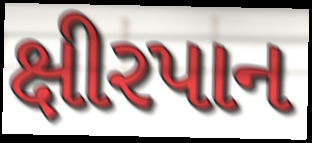
ક્ષીરપાન